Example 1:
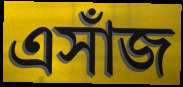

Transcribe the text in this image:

এসাঁজ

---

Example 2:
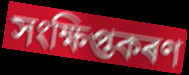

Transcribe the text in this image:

সংক্ষিপ্তকৰণ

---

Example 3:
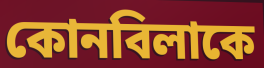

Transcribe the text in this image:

কোনবিলাকে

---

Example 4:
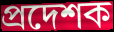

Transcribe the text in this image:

প্ৰদেশক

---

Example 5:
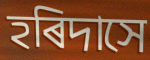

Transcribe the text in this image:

হৰিদাসে